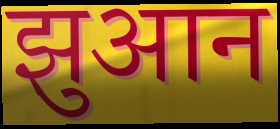
झुआन